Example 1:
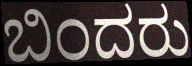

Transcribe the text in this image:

ಬಿಂದರು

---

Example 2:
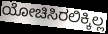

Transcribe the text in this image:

ಯೋಚಿಸಿರಲಿಕ್ಕಿಲ್ಲ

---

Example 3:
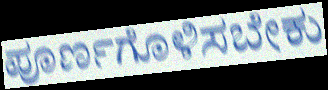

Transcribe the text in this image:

ಪೂರ್ಣಗೊಳಿಸಬೇಕು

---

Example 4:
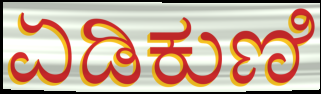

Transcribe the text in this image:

ಏಡಿಕುಣಿ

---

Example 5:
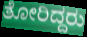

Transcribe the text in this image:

ತೋರಿದ್ದರು